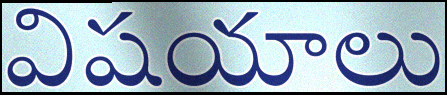
విషయాలు